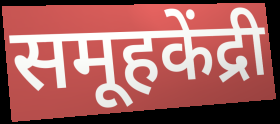
समूहकेंद्री